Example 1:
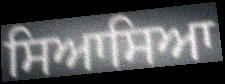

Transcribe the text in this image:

ਸਿਆਸਿਆ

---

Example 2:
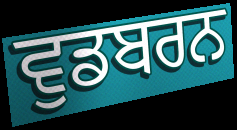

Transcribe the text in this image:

ਵੁਡਬਰਨ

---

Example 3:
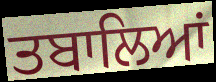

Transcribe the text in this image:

ਤਬਾਲਿਆਂ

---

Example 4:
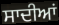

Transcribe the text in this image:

ਸਾਦੀਆਂ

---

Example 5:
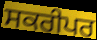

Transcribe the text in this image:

ਸਕਰੀਪਰ